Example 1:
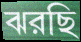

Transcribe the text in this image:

ঝরছি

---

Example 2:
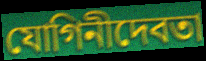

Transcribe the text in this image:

যোগিনীদেবতা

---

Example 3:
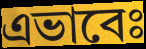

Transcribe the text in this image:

এভাবেঃ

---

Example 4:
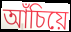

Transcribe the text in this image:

আঁচিয়ে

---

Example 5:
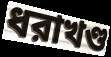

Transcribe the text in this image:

ধরাখণ্ড